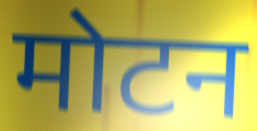
मोटन